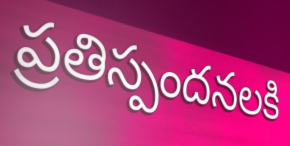
ప్రతిస్పందనలకి